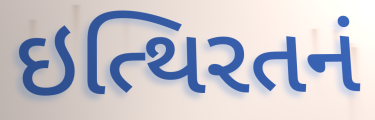
ઇત્થિરતનં